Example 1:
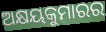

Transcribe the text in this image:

ଅକ୍ଷୟକୁମାରର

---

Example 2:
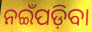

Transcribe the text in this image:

ନଇଁପଡ଼ିବା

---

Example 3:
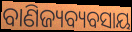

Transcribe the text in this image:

ବାଣିଜ୍ୟବ୍ୟବସାୟ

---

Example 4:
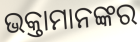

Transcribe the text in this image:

ଭକ୍ତାମାନଙ୍କର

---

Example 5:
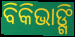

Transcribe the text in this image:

ବିକିଭାଙ୍ଗି